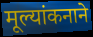
मूल्यांकनाने